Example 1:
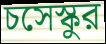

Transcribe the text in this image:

চসেস্কুর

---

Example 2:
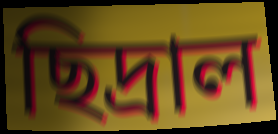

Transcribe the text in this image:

ছিদ্রাল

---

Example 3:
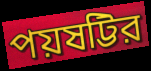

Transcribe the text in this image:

পয়ষট্টির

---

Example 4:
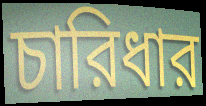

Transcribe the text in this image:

চারিধার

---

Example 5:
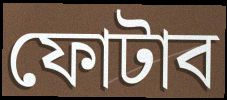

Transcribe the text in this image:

ফোটাব